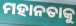
ମହାନତାକୁ